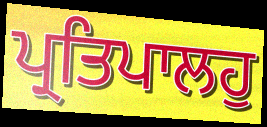
ਪ੍ਰਤਿਪਾਲਹੁ